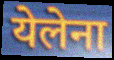
येलेना